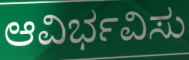
ಆವಿರ್ಭವಿಸು